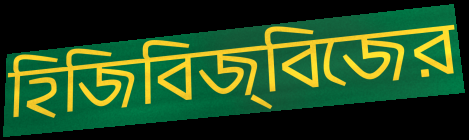
হিজিবিজ্‌বিজের